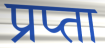
प्रप्ता